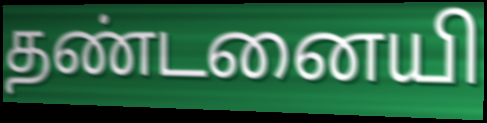
தண்டனையி